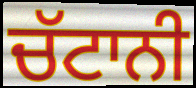
ਚੱਟਾਨੀ